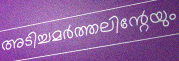
അടിച്ചമർത്തലിന്റേയും